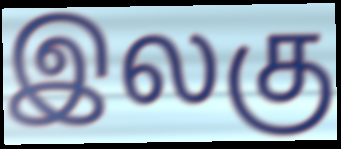
இலகு